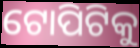
ଟୋପିଟିକୁ